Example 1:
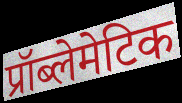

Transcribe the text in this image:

प्रॉब्लेमेटिक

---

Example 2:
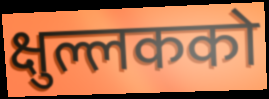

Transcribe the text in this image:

क्षुल्लकको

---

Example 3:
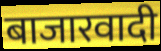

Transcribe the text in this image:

बाजारवादी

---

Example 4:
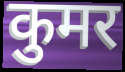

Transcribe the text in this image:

कुमर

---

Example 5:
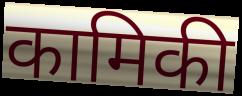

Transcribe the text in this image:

कामिकी